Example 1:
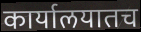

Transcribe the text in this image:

कार्यालयातच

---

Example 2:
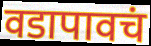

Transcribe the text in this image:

वडापावचं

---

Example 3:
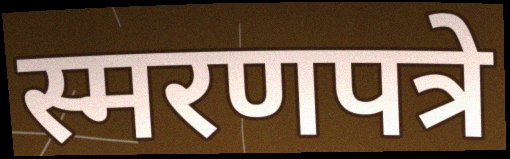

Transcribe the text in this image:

स्मरणपत्रे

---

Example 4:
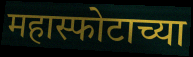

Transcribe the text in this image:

महास्फोटाच्या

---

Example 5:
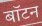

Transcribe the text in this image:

बॉटन